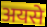
अयसे